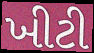
ખીટી